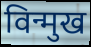
विन्मुख